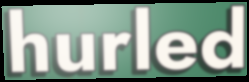
hurled